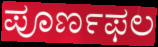
ಪೂರ್ಣಫಲ